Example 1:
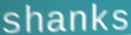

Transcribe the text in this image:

shanks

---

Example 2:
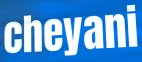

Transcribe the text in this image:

cheyani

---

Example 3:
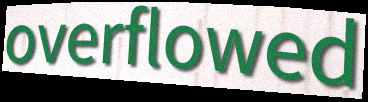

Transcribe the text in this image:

overflowed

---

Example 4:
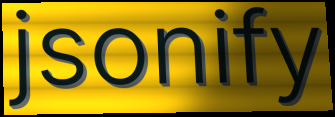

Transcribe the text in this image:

jsonify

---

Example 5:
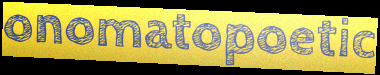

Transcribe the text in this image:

onomatopoetic